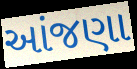
આંજણા